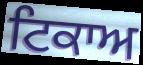
ਟਿਕਾਅ